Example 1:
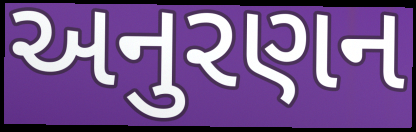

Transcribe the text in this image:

અનુરણન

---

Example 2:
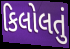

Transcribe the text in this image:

કિલોલતું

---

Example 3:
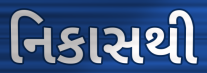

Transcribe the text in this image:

નિકાસથી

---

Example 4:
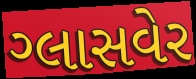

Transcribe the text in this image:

ગ્લાસવેર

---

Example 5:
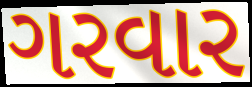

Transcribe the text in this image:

ગરવાર